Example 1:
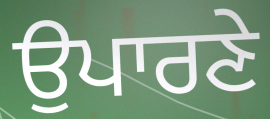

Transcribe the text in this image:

ਉਪਾਰਣੇ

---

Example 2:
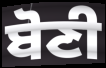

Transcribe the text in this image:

ਬੋਣੀ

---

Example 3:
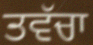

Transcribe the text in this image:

ਤਵੱਚਾ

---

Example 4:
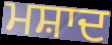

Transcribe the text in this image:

ਮਸ਼ਾਦ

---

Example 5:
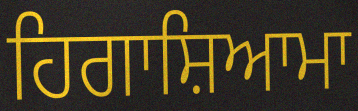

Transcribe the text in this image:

ਹਿਗਾਸ਼ਿਆਮਾ